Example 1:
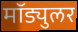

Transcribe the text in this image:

मॉड्युलर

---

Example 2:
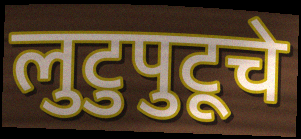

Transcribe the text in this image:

लुटुपुटूचे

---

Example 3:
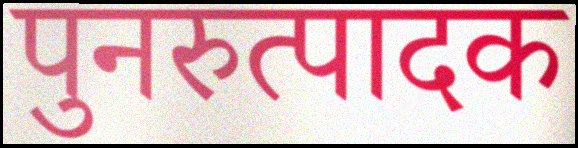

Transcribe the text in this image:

पुनरुत्पादक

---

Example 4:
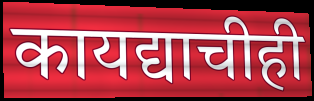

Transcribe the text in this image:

कायद्याचीही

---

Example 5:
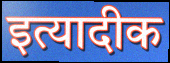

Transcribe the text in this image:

इत्यादीक